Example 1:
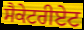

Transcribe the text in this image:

ਸੈਕੇਟਰੀਏਟ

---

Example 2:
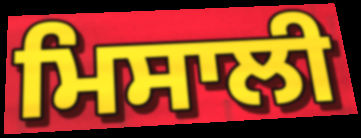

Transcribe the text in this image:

ਮਿਸਾਲੀ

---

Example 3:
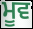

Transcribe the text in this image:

ਮੂਵ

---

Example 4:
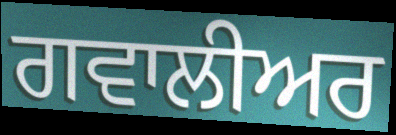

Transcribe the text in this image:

ਗਵਾਲੀਅਰ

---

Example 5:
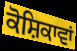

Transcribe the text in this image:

ਕੋਸ਼ਿਕਾਵਾਂ